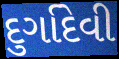
દુર્ગાદેવી